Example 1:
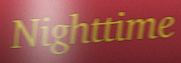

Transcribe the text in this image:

Nighttime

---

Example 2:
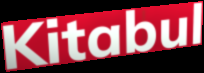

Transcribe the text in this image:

Kitabul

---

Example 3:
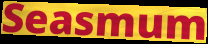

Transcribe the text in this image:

Seasmum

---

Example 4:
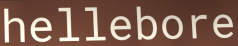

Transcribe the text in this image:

hellebore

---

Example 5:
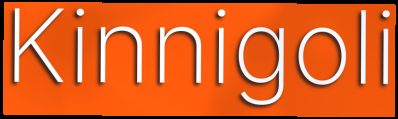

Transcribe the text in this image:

Kinnigoli